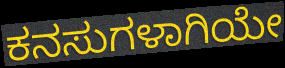
ಕನಸುಗಳಾಗಿಯೇ